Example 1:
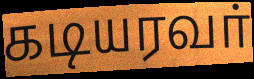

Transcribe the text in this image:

கடியரவர்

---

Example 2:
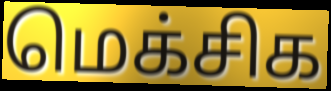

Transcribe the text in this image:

மெக்சிக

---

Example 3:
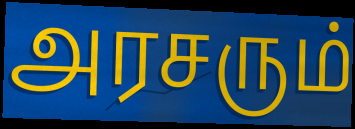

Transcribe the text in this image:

அரசரும்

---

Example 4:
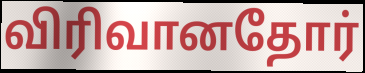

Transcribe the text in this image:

விரிவானதோர்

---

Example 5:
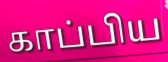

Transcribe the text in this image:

காப்பிய